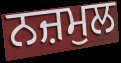
ਨਜ਼ਮੁਲ